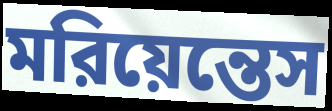
মরিয়েন্তেস